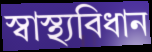
স্বাস্থ্যবিধান